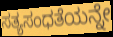
ಸತ್ಯಸಂಧತೆಯನ್ನೇ